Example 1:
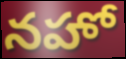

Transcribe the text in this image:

నహో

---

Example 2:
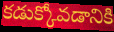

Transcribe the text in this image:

కడుక్కోవడానికి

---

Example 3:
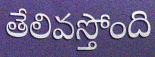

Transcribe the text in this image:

తేలివస్తోంది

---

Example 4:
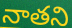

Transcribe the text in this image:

నాతని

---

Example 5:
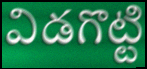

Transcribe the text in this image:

విడగొట్టి